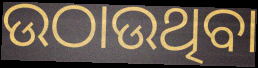
ଉଠାଉଥିବା